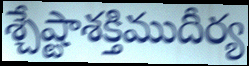
శ్చేష్టాశక్తిముదీర్య